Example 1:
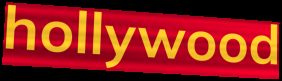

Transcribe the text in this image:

hollywood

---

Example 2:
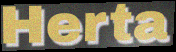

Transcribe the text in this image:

Herta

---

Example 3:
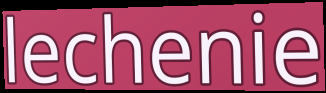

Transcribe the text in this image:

lechenie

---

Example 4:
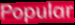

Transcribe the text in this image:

Popular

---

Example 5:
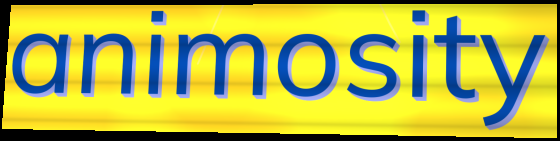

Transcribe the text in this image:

animosity